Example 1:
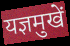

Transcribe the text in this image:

यज्ञमुखें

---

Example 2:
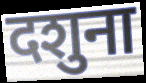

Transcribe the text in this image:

दशुना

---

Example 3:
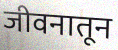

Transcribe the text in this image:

जीवनातून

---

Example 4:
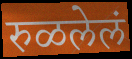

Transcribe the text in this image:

रुळलेलं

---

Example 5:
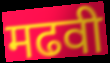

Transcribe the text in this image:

मढवी